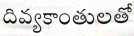
దివ్యకాంతులతో